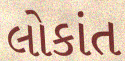
લોકાંત